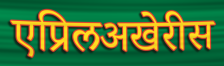
एप्रिलअखेरीस